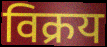
विक्रय